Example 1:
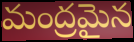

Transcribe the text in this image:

మంద్రమైన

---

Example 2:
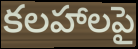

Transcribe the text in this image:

కలహాలపై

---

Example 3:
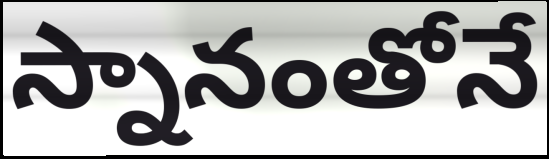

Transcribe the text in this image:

స్నానంతోనే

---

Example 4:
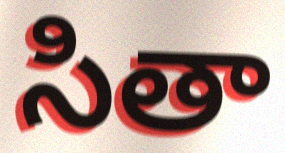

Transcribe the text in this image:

సితా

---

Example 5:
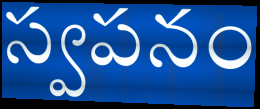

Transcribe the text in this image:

స్వపనం